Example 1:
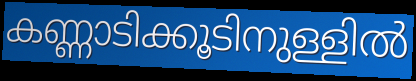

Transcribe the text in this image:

കണ്ണാടിക്കൂടിനുള്ളിൽ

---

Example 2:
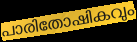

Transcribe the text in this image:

പാരിതോഷികവും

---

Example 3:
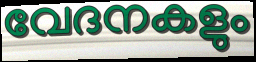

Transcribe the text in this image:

വേദനകളും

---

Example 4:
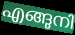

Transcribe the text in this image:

എങ്ങുനി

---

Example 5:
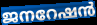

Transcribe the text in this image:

ജനറേഷൻ